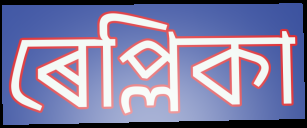
ৰেপ্লিকা